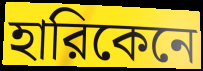
হারিকেনে